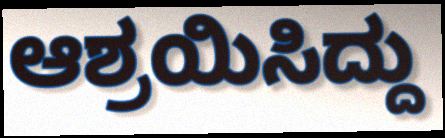
ಆಶ್ರಯಿಸಿದ್ದು